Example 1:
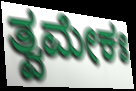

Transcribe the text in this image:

ತ್ವಮೇಕಃ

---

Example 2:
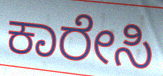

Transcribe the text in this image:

ಕಾರೇಸಿ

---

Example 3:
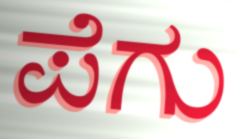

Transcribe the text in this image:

ಪೆಗು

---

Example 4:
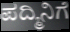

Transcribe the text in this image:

ಪದ್ಮಿನಿಗೆ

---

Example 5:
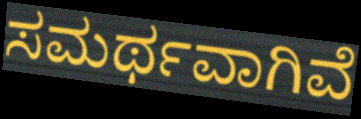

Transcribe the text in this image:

ಸಮರ್ಥವಾಗಿವೆ